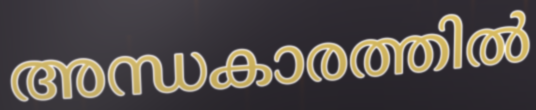
അന്ധകാരത്തിൽ